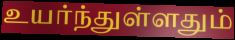
உயர்ந்துள்ளதும்